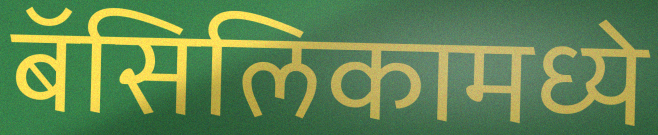
बॅसिलिकामध्ये